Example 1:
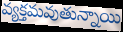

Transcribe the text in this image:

వ్యక్తమవుతున్నాయి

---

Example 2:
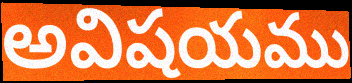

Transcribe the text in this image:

అవిషయము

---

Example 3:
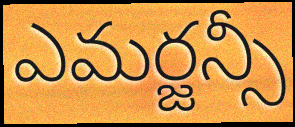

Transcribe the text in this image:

ఎమర్జన్సీ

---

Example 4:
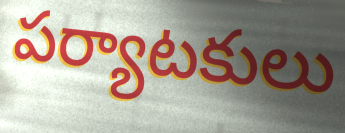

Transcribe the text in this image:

పర్యాటకులు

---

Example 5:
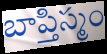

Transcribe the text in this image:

బాప్తిస్మం